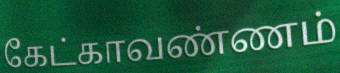
கேட்காவண்ணம்